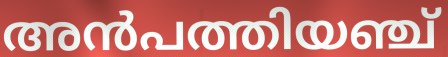
അൻപത്തിയഞ്ച്